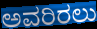
ಅವರಿರಲು